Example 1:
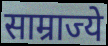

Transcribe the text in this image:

साम्राज्ये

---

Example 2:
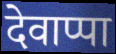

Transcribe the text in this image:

देवाप्पा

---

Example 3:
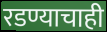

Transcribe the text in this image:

रडण्याचाही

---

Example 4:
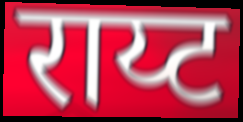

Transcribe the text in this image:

राय्ट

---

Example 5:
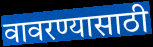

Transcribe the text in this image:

वावरण्यासाठी